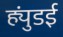
ह्युंडई